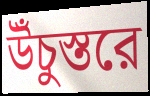
উঁচুস্তরে